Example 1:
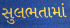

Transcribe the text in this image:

સુલભતામાં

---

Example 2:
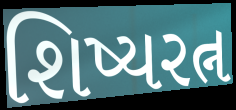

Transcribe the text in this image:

શિષ્યરત્ન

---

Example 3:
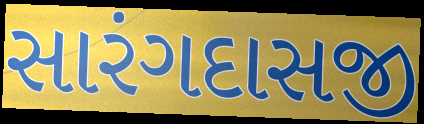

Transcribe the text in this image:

સારંગદાસજી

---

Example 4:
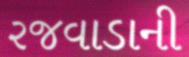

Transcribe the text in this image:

રજવાડાની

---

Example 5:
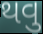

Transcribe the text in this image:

થવુ